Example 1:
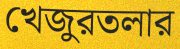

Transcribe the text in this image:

খেজুরতলার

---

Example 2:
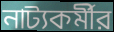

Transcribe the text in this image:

নাট্যকর্মীর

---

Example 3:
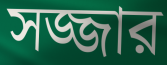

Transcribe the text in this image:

সজ্জার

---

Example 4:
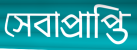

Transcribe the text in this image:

সেবাপ্রাপ্তি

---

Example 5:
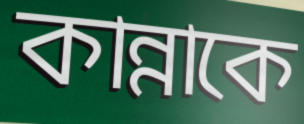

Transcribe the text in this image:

কান্নাকে